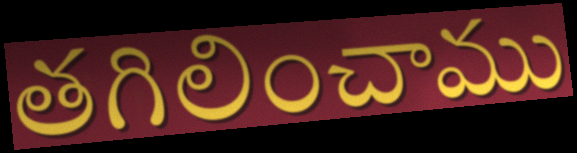
తగిలించాము